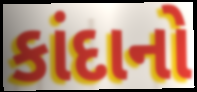
કાંદાનો